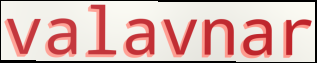
valavnar